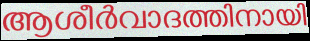
ആശീർവാദത്തിനായി